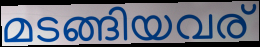
മടങ്ങിയവര്